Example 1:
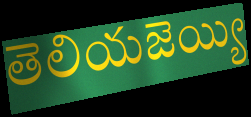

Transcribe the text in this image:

తెలియజెయ్యి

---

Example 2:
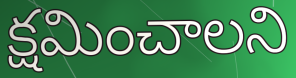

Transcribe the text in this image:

క్షమించాలని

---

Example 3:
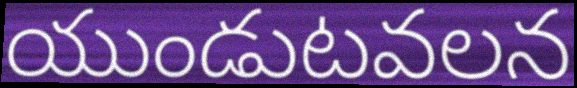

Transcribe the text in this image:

యుండుటవలన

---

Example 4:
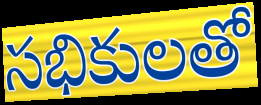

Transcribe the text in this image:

సభికులతో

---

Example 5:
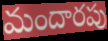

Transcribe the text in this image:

మందారపు